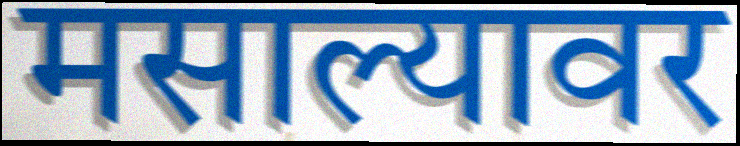
मसाल्यावर